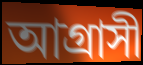
আগ্ৰাসী